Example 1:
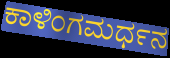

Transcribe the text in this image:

ಕಾಳಿಂಗಮರ್ಧನ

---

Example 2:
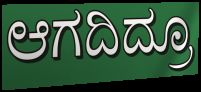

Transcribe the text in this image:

ಆಗದಿದ್ರೂ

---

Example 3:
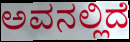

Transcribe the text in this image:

ಅವನಲ್ಲಿದೆ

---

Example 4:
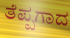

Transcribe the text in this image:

ತೆಪ್ಪಗಾದ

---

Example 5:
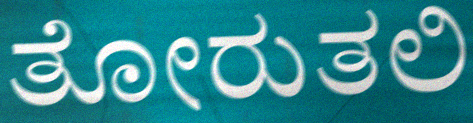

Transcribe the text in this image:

ತೋರುತಲಿ